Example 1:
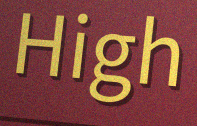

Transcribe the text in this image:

High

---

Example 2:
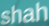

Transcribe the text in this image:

shah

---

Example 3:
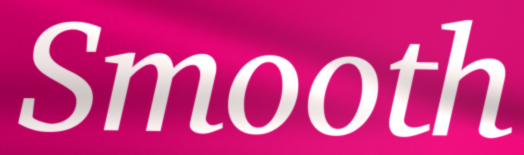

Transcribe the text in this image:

Smooth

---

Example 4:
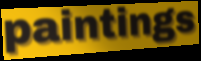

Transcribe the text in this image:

paintings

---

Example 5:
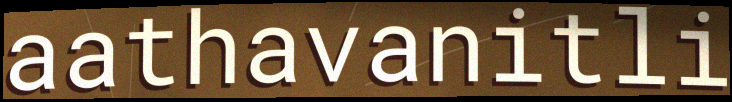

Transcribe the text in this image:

aathavanitli